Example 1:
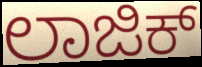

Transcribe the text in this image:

ಲಾಜಿಕ್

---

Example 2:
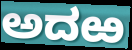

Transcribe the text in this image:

ಅದಱ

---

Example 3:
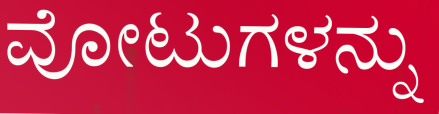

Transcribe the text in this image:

ವೋಟುಗಳನ್ನು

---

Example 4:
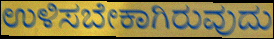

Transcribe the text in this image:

ಉಳಿಸಬೇಕಾಗಿರುವುದು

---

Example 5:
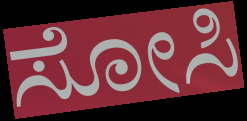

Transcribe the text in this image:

ಸೋಸಿ